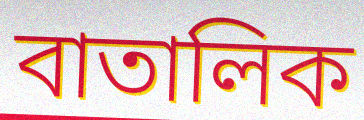
বাতালিক